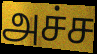
அச்ச